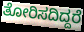
ತೋರಿಸದಿದ್ದರೆ